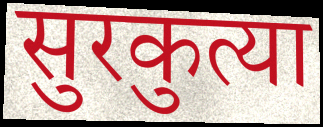
सुरकुत्या